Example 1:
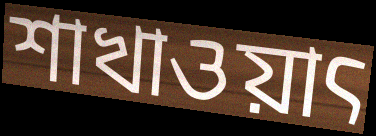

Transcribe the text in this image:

শাখাওয়াৎ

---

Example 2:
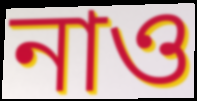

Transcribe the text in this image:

নাও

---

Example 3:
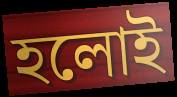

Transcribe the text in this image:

হলোই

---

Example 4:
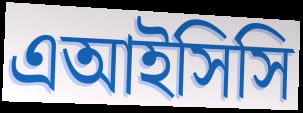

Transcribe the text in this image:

এআইসিসি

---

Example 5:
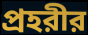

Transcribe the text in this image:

প্রহরীর